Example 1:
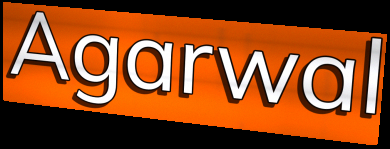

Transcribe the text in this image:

Agarwal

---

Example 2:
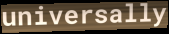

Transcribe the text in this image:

universally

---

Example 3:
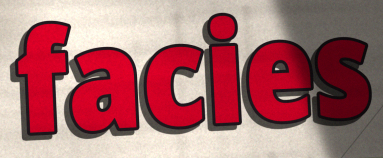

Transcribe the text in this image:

facies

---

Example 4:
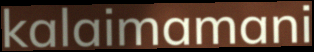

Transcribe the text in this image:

kalaimamani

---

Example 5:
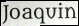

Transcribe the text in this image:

Joaquin